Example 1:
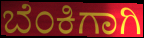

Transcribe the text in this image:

ಬೆಂಕಿಗಾಗಿ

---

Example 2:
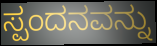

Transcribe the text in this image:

ಸ್ಪಂದನವನ್ನು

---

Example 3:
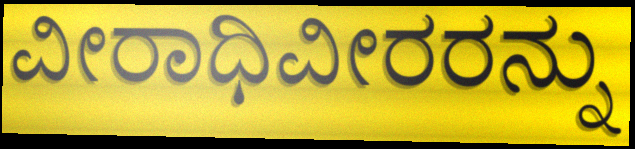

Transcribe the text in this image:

ವೀರಾಧಿವೀರರನ್ನು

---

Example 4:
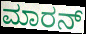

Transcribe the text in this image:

ಮಾರನ್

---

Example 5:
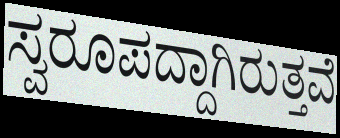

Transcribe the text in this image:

ಸ್ವರೂಪದ್ದಾಗಿರುತ್ತವೆ